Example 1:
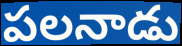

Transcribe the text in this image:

పలనాడు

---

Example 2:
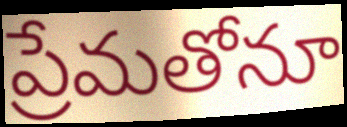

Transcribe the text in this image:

ప్రేమతోనూ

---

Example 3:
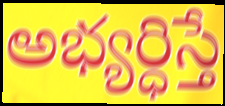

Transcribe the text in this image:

అభ్యర్ధిస్తే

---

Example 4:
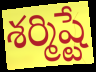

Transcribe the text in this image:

శర్మిష్టే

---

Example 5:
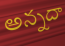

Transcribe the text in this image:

అన్నదా